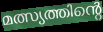
മത്സ്യത്തിന്റെ